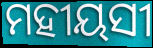
ମହୀୟସୀ